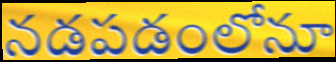
నడపడంలోనూ